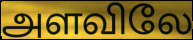
அளவிலே